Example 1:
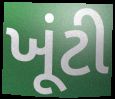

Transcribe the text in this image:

ખૂંટી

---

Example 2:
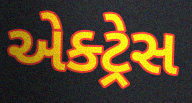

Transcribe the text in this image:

એક્ટ્રેસ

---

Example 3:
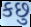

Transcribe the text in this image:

કછુ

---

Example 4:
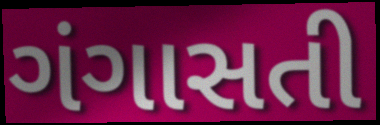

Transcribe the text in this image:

ગંગાસતી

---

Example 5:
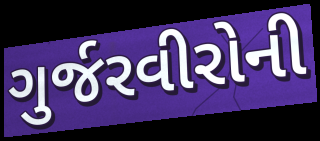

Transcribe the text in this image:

ગુર્જરવીરોની